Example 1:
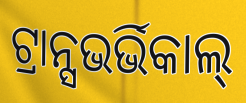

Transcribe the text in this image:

ଟ୍ରାନ୍ସଭର୍ଭିକାଲ୍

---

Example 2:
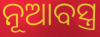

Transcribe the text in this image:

ନୂଆବସ୍ତ୍ର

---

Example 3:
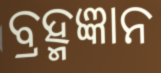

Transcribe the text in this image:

ବ୍ରହ୍ମଜ୍ଞାନ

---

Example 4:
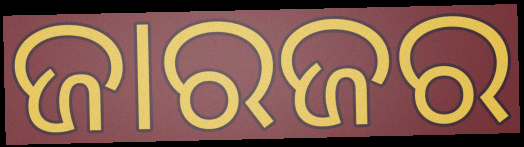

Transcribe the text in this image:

ଜାରଜର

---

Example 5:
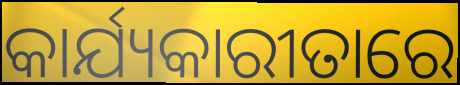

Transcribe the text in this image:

କାର୍ଯ୍ୟକାରୀତାରେ